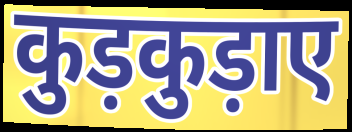
कुड़कुड़ाए